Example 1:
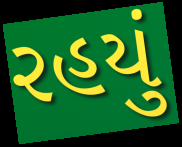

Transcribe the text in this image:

રહયું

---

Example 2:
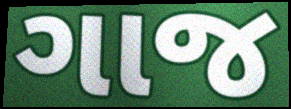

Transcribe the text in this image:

ગાજ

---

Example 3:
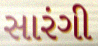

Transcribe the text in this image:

સારંગી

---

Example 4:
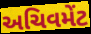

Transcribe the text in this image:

અચિવમેંટ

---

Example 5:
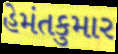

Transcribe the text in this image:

હેમંતકુમાર